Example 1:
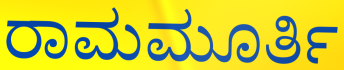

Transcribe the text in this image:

ರಾಮಮೂರ್ತಿ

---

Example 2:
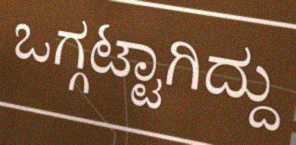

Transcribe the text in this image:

ಒಗ್ಗಟ್ಟಾಗಿದ್ದು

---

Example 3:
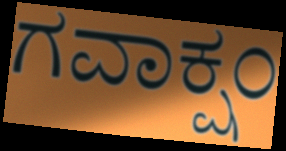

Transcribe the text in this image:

ಗವಾಕ್ಷಂ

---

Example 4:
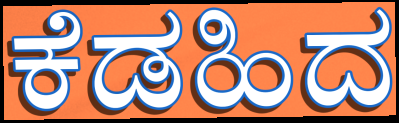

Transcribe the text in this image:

ಕೆಡಹಿದ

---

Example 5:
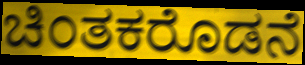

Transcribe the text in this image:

ಚಿಂತಕರೊಡನೆ